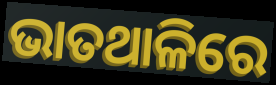
ଭାତଥାଳିରେ